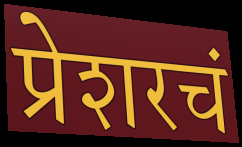
प्रेशरचं